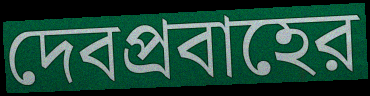
দেবপ্রবাহের